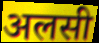
अलसी